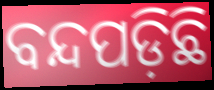
ବନ୍ଦପଡ଼ିଛି